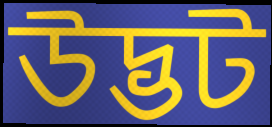
উদ্ভট